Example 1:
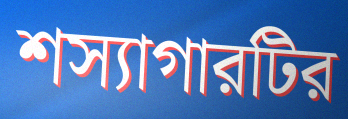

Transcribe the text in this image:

শস্যাগারটির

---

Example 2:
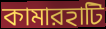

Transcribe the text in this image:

কামারহাটি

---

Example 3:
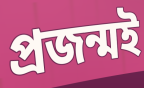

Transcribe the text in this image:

প্রজন্মই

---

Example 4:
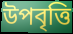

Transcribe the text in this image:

উপবৃত্তি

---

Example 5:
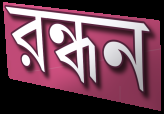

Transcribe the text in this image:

রন্ধন